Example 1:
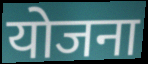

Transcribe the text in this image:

योजना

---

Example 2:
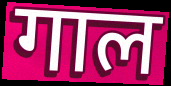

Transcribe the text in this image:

गाल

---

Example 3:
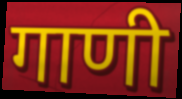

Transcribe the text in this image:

गाणी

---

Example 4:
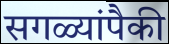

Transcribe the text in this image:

सगळ्यांपैकी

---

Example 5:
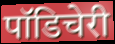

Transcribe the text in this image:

पॉंडिचेरी